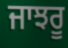
ਜਾਝਰੂ